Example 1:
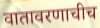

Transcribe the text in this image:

वातावरणाचीच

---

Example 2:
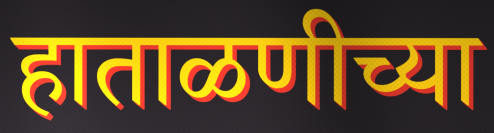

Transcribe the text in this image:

हाताळणीच्या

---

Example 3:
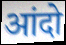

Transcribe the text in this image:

आंदो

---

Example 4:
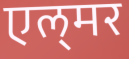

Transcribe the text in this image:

एल्मर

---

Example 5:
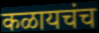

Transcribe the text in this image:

कळायचंच